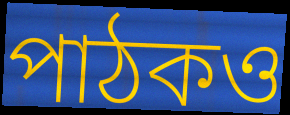
পাঠকও